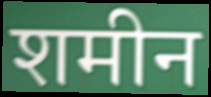
शमीन